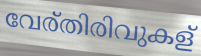
വേര്തിരിവുകള്